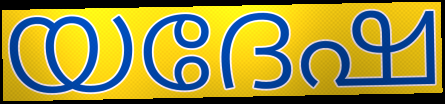
യദേഷ